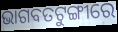
ଭାଗବତଟୁଙ୍ଗୀରେ